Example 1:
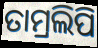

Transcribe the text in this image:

ତାମ୍ରଲିପି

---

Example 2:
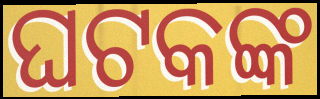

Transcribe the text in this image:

ଘଟକଙ୍କ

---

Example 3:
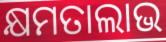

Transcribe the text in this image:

କ୍ଷମତାଲାଭ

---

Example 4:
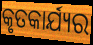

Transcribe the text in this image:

କୃତକାର୍ଯ୍ୟର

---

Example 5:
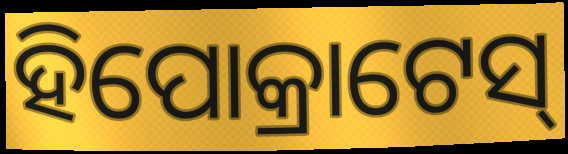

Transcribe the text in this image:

ହିପୋକ୍ରାଟେସ୍